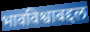
भावविश्वाबद्दल